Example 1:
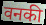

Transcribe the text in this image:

वनकी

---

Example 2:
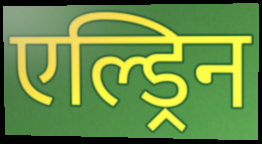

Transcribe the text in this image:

एल्ड्रिन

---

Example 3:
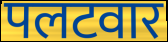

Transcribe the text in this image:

पलटवार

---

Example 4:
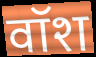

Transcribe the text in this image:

वॉश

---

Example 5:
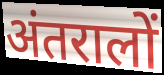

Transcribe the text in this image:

अंतरालों